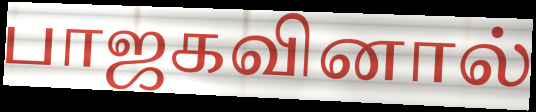
பாஜகவினால்